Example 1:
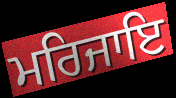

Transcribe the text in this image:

ਮਰਿਜਾਇ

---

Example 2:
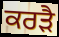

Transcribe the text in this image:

ਕਰੜੈ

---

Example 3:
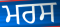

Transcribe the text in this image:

ਮਰਸ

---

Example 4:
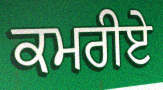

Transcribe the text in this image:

ਕਮਰੀਏ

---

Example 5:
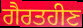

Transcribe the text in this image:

ਗੈਰਤਹੀਣ